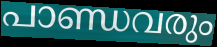
പാണ്ഡവരും